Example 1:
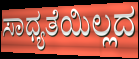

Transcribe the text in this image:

ಸಾಧ್ಯತೆಯಿಲ್ಲದ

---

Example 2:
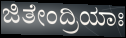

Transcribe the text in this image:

ಜಿತೇಂದ್ರಿಯಾಃ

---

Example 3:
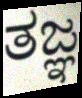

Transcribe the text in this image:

ತಜ್ಞ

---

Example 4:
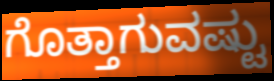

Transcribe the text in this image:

ಗೊತ್ತಾಗುವಷ್ಟು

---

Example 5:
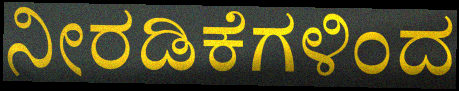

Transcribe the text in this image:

ನೀರಡಿಕೆಗಳಿಂದ